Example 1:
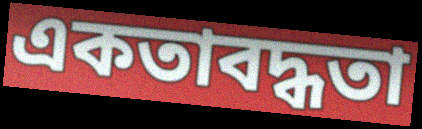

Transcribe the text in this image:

একতাবদ্ধতা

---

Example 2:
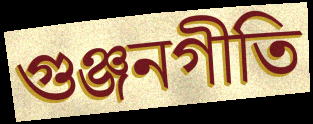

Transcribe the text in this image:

গুঞ্জনগীতি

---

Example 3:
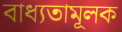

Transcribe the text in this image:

বাধ্যতামূলক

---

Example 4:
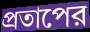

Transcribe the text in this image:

প্রতাপের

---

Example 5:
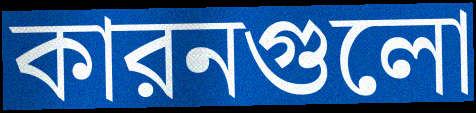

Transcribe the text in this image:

কারনগুলো